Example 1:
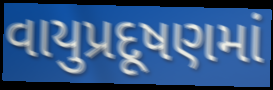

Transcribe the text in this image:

વાયુપ્રદૂષણમાં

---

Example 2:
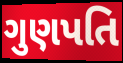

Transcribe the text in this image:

ગુણપતિ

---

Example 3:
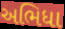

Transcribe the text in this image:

અભિધા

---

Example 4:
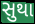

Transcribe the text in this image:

સુથા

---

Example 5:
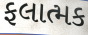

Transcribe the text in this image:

ફલાત્મક